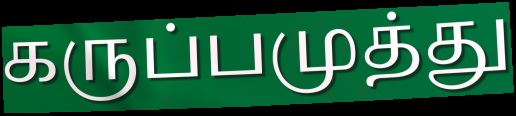
கருப்பமுத்து